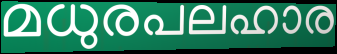
മധുരപലഹാര